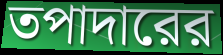
তপাদারের